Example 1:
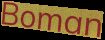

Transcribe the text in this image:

Boman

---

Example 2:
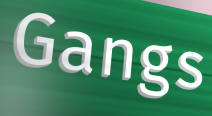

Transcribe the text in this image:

Gangs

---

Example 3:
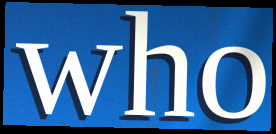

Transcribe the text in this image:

who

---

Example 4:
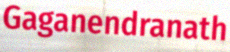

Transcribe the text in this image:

Gaganendranath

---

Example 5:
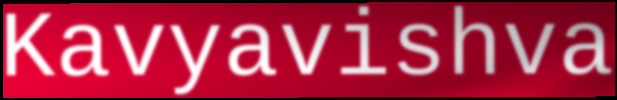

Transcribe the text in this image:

Kavyavishva